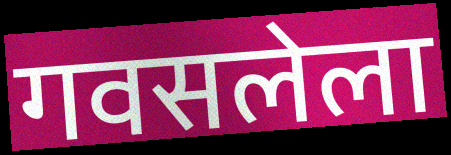
गवसलेला